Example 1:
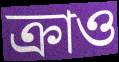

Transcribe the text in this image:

ক্রাও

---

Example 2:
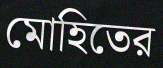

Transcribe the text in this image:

মোহিতের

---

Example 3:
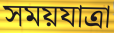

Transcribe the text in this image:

সময়যাত্রা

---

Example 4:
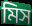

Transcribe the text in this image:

মিস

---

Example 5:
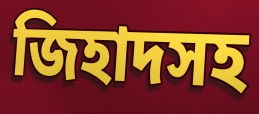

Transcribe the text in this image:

জিহাদসহ